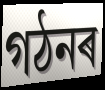
গঠনৰ